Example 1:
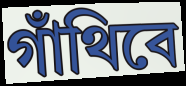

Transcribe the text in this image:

গাঁথিবে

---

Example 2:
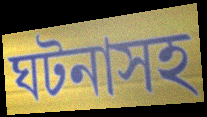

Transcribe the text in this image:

ঘটনাসহ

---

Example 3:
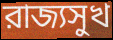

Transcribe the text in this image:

রাজ্যসুখ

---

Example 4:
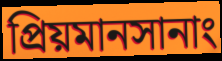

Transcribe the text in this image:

প্রিয়মানসানাং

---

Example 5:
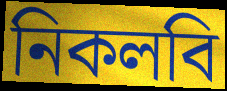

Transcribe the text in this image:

নিকলবি